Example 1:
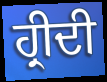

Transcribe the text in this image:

ਹ੍ਰੀਦੀ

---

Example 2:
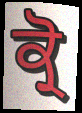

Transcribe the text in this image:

ਕ੍ਰੋ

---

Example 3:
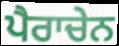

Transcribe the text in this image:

ਪੈਰਾਚੇਨ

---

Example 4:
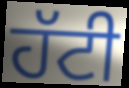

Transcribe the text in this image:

ਹੱਟੀ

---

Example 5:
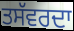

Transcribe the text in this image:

ਤਸੱਵਰਦਾ